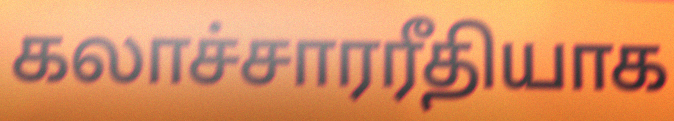
கலாச்சாரரீதியாக